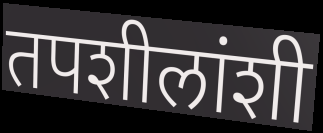
तपशीलांशी